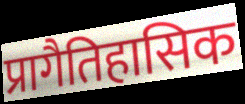
प्रागैतिहासिक